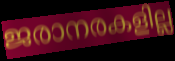
ജരാനരകളില്ല